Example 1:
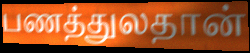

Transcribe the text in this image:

பணத்துலதான்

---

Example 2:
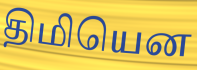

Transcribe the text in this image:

திமியென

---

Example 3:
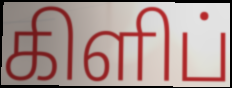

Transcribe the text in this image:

கிளிப்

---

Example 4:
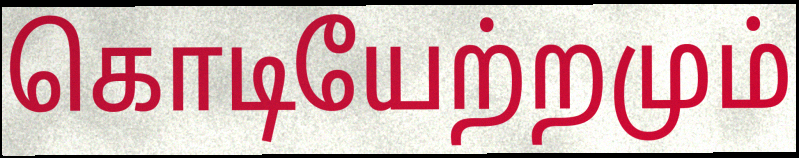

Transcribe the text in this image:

கொடியேற்றமும்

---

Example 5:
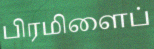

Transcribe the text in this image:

பிரமிளைப்